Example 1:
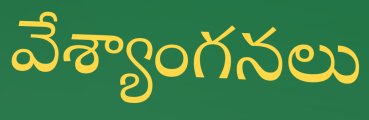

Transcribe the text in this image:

వేశ్యాంగనలు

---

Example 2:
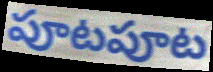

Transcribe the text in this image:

పూటపూట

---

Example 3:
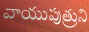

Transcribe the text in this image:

వాయుపుత్రుని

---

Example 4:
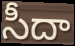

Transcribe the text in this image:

సీదా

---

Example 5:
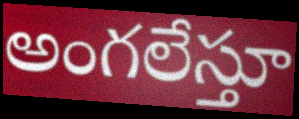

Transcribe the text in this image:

అంగలేస్తూ